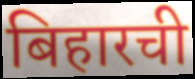
बिहारची